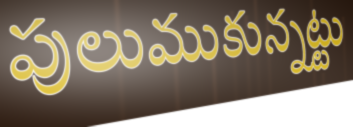
పులుముకున్నట్టు